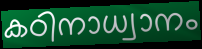
കഠിനാധ്വാനം